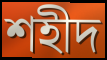
শহীদ